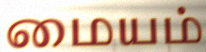
மையம்